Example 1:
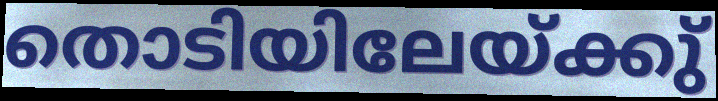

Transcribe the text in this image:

തൊടിയിലേയ്ക്കു്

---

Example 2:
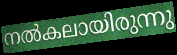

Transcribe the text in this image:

നൽകലായിരുന്നു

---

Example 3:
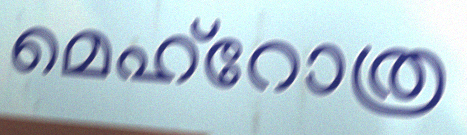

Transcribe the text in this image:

മെഹ്റോത്ര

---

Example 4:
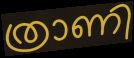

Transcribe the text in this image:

ത്രാണി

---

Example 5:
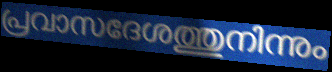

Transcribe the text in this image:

പ്രവാസദേശത്തുനിന്നും